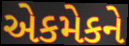
એકમેકને